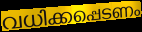
വധിക്കപ്പെടണം